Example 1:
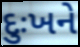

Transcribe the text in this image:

દુઃખને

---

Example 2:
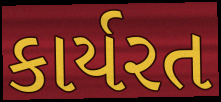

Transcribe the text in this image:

કાર્યરત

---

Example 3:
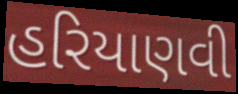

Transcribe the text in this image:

હરિયાણવી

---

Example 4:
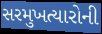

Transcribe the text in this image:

સરમુખત્યારોની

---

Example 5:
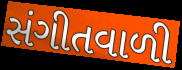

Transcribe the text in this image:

સંગીતવાળી